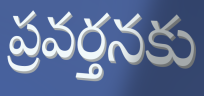
ప్రవర్తనకు